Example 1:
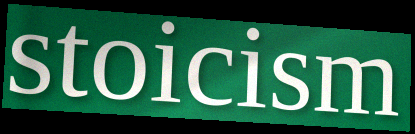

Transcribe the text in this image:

stoicism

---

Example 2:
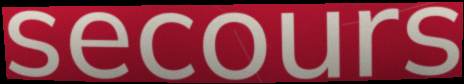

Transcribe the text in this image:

secours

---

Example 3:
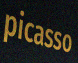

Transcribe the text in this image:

picasso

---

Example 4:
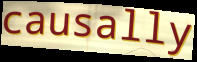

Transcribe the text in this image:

causally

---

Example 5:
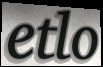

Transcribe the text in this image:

etlo